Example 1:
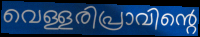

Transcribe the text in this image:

വെള്ളരിപ്രാവിന്റെ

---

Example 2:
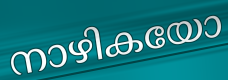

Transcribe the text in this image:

നാഴികയോ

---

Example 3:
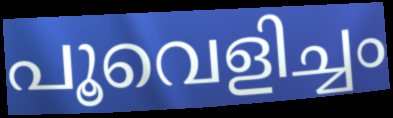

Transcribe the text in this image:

പൂവെളിച്ചം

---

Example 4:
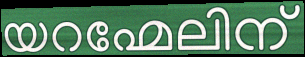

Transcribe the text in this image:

യറഹ്മേലിന്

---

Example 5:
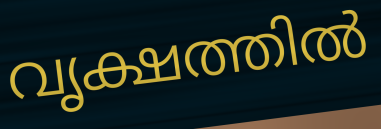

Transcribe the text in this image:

വൃക്ഷത്തിൽ